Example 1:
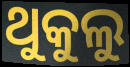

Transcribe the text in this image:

ଥୁକୁଲୁ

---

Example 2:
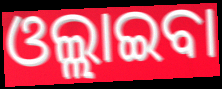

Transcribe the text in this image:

ଓଲ୍ଲାଇବା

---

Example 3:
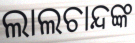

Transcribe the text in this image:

ଲାଲଚାନ୍ଦଙ୍କ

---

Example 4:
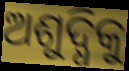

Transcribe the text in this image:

ଅଶୁଦ୍ଧିକୁ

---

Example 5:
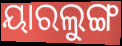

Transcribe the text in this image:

ୟାରଲୁଙ୍ଗ